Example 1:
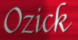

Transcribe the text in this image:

Ozick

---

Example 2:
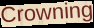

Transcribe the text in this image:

Crowning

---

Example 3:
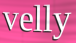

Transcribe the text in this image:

velly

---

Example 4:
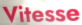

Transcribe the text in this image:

Vitesse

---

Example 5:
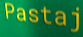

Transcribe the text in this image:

Pastaj